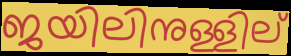
ജയിലിനുള്ളില്